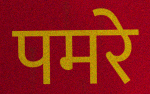
पमरे